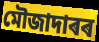
মৌজাদাৰৰ